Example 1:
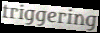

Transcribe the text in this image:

triggering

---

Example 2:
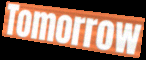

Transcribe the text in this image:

Tomorrow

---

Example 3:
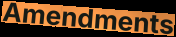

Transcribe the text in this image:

Amendments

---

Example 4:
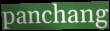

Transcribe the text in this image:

panchang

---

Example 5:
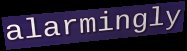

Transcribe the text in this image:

alarmingly